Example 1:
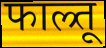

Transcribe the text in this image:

फाल्तू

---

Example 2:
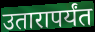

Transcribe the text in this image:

उतारापर्यंत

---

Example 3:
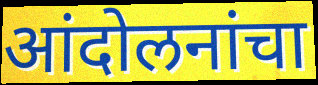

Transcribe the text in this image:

आंदोलनांचा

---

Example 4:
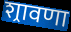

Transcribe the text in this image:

श्रावणा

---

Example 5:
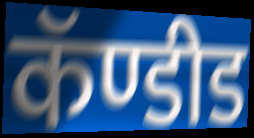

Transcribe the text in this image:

कॅण्डीड